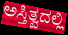
ಅಸ್ತಿತ್ವದಲ್ಲಿ